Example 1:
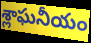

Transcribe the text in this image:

శ్లాఘనీయం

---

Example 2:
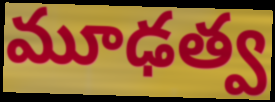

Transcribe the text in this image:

మూఢత్వ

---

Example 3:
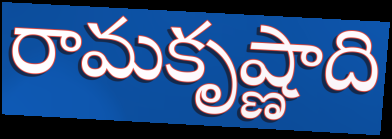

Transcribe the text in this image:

రామకృష్ణాది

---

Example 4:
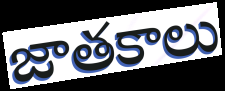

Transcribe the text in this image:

జాతకాలు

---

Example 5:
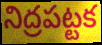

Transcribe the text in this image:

నిద్రపట్టక